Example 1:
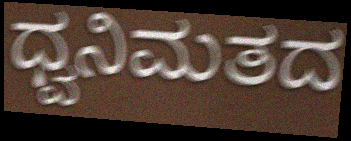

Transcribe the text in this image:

ಧ್ವನಿಮತದ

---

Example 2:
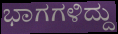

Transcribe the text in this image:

ಭಾಗಗಳಿದ್ದು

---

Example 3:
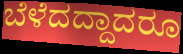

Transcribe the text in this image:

ಬೆಳೆದದ್ದಾದರೂ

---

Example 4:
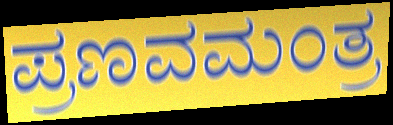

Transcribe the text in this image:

ಪ್ರಣವಮಂತ್ರ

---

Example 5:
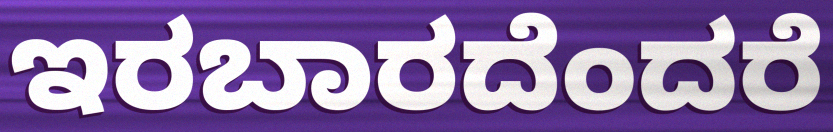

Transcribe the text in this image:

ಇರಬಾರದೆಂದರೆ